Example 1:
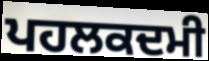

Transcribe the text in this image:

ਪਹਲਕਦਮੀ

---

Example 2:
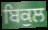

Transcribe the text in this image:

ਬਿਕੁਲ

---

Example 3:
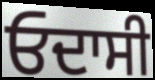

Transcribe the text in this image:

ਓਦਾਸੀ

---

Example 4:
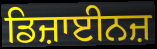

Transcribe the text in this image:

ਡਿਜ਼ਾਈਨਜ਼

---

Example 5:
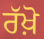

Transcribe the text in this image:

ਰੱਖ਼ੋ